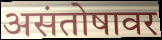
असंतोषावर